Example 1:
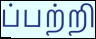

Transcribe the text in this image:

ப்பற்றி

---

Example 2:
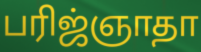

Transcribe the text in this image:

பரிஜ்ஞாதா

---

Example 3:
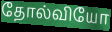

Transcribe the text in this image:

தோல்வியோ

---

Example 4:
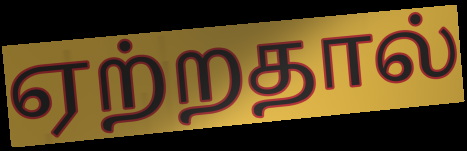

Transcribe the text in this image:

ஏற்றதால்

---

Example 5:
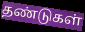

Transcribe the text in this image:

தண்டுகள்